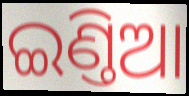
ଇଣ୍ତିଆ